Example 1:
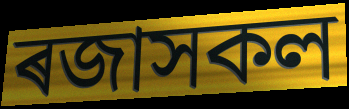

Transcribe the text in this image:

ৰজাসকল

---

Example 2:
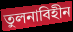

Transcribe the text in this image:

তুলনাবিহীন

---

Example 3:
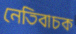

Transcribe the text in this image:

নেতিবাচক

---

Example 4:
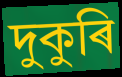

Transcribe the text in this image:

দুকুৰি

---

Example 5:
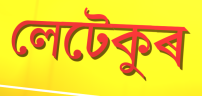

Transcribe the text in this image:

লেটেকুৰ